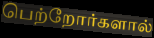
பெற்றோர்களால்